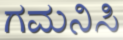
ಗಮನಿಸಿ